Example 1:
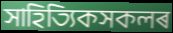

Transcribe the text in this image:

সাহিত্যিকসকলৰ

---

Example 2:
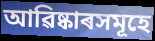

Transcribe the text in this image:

আৱিষ্কাৰসমূহে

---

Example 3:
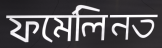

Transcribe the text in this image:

ফৰ্মেলিনত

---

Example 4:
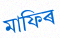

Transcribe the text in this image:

মাফিৰ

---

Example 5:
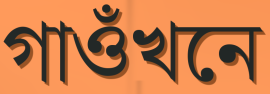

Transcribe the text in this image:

গাওঁখনে